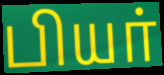
பியர்